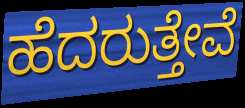
ಹೆದರುತ್ತೇವೆ